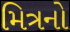
મિત્રનો